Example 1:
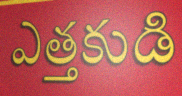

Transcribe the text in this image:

ఎత్తకుడి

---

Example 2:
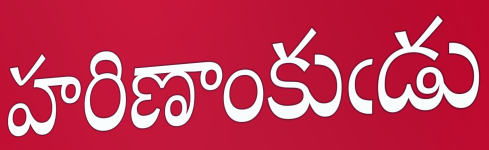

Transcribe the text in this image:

హరిణాంకుఁడు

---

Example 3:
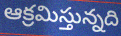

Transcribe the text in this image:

ఆక్రమిస్తున్నది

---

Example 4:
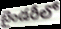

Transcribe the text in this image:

బైండరీలో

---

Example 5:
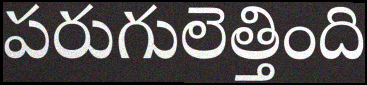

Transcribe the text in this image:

పరుగులెత్తింది